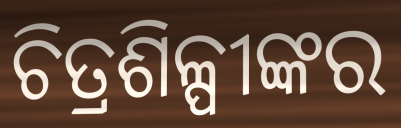
ଚିତ୍ରଶିଳ୍ପୀଙ୍କର